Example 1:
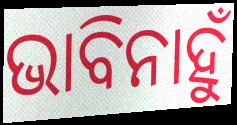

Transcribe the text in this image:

ଭାବିନାହୁଁ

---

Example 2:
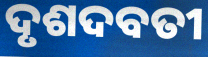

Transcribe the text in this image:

ଦୃଶଦବତୀ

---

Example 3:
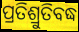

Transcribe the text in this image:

ପ୍ରତିଶ୍ରୁତିବଦ୍ଧ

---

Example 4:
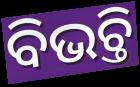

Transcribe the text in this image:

ବିଭଚ୍ତି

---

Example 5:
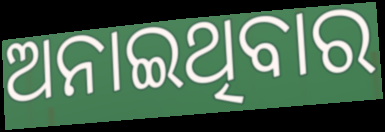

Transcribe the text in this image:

ଅନାଇଥିବାର